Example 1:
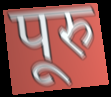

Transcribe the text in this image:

पूरु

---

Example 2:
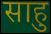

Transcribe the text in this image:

साहु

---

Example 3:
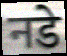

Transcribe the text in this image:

नडे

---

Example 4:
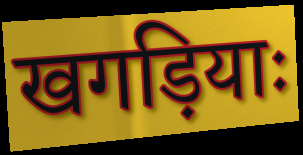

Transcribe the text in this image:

खगड़ियाः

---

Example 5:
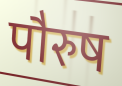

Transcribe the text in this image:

पौरुष